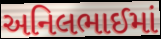
અનિલભાઈમાં